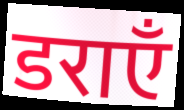
डराएँ